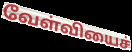
வேள்வியைச்